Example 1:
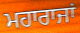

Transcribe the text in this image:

ਮਹਾਰਾਜਾਂ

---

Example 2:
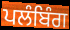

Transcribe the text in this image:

ਪਲੰਬਿੰਗ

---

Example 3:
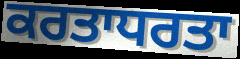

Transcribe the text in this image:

ਕਰਤਾਧਰਤਾ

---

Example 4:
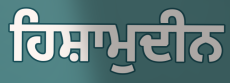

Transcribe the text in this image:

ਹਿਸ਼ਾਮੁਦੀਨ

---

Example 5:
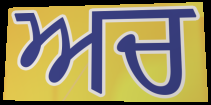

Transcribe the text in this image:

ਅਚ